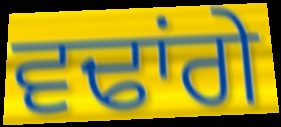
ਵਢਾਂਗੇ